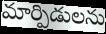
మార్పిడులను